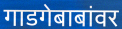
गाडगेबाबांवर